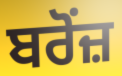
ਬਰੋਂਜ਼